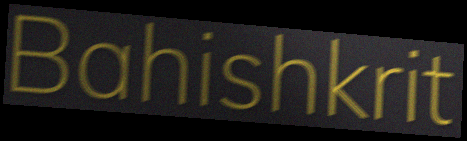
Bahishkrit